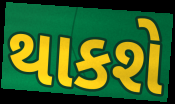
થાકશે